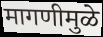
मागणीमुळे